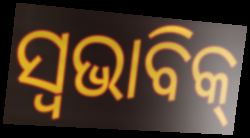
ସ୍ୱଭାବିକ୍